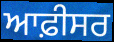
ਆਫ਼ੀਸਰ